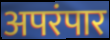
अपरंपार